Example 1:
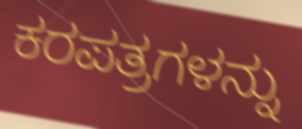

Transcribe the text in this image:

ಕರಪತ್ರಗಳನ್ನು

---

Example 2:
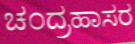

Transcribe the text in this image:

ಚಂದ್ರಹಾಸರ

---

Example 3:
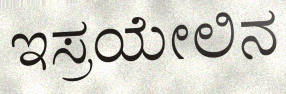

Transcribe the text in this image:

ಇಸ್ರಯೇಲಿನ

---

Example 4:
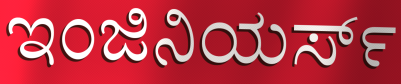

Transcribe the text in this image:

ಇಂಜಿನಿಯರ್ಸ್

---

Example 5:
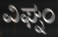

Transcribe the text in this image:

ವಿಘ್ನಂ